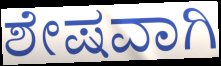
ಶೇಷವಾಗಿ